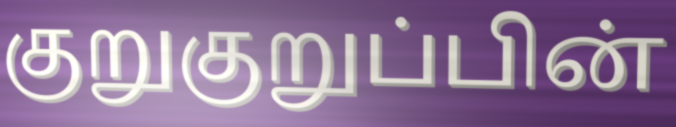
குறுகுறுப்பின்